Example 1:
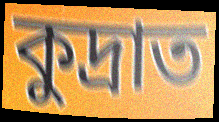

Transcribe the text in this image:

কুদ্রাত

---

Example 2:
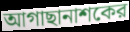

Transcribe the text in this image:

আগাছানাশকের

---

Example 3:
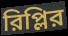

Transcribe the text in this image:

রিপ্লির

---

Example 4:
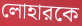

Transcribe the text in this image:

লোহারকে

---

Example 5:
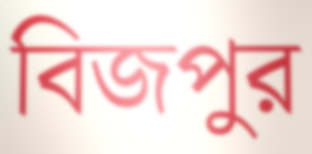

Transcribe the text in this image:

বিজপুর